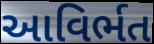
આવિર્ભત